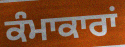
ਕੰਮਾਕਾਰਾਂ